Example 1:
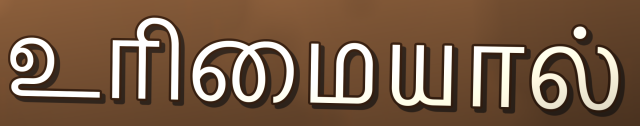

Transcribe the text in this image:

உரிமையால்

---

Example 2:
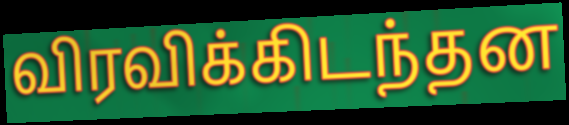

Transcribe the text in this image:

விரவிக்கிடந்தன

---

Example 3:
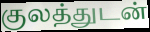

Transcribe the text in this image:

குலத்துடன்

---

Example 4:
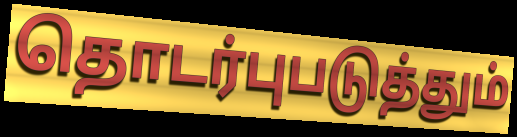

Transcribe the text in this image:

தொடர்புபடுத்தும்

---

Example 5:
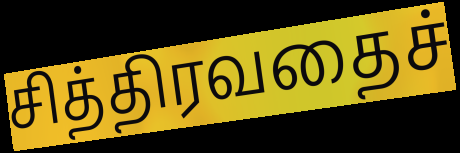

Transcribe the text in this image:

சித்திரவதைச்